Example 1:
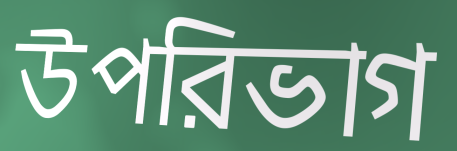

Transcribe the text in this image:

উপরিভাগ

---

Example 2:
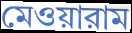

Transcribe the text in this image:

মেওয়ারাম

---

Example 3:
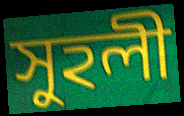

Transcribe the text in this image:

সুহলী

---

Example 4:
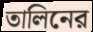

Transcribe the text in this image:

তালিনের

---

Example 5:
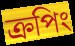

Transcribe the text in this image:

ক্রপিং